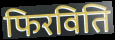
फिरविति